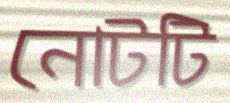
নোটটি